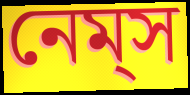
নেম্‌স